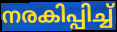
നരകിപ്പിച്ച്